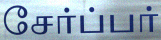
சேர்ப்பர்